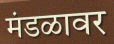
मंडळावर